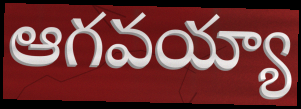
ఆగవయ్యా